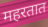
महरतात